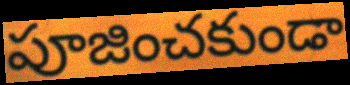
పూజించకుండా